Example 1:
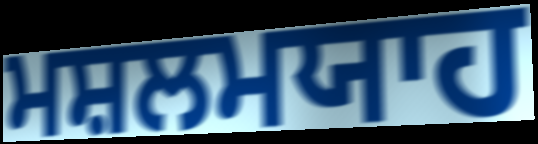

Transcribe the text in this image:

ਮਸ਼ਲਮਯਾਹ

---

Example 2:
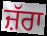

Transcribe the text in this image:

ਜ਼ੱਰਾ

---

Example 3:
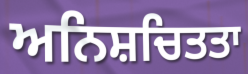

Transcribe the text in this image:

ਅਨਿਸ਼ਚਿਤਤਾ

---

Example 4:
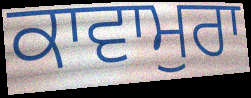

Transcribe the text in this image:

ਕਾਵਾਮੁਰਾ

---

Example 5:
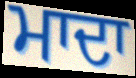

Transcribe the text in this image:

ਮਾਦਾ